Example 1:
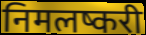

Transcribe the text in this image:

निमलष्करी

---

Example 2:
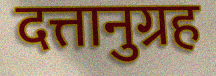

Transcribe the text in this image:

दत्तानुग्रह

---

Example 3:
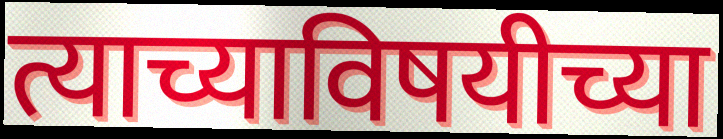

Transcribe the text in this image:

त्याच्याविषयीच्या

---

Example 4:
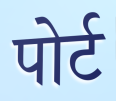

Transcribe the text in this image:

पोर्ट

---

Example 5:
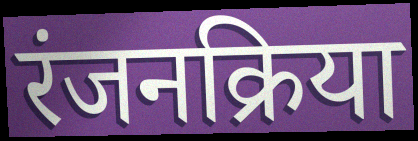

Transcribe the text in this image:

रंजनक्रिया